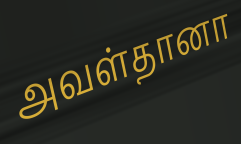
அவள்தானா